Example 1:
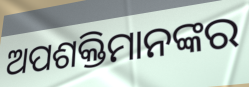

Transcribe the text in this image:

ଅପଶକ୍ତିମାନଙ୍କର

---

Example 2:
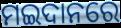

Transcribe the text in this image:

ମଇଦାନରେ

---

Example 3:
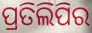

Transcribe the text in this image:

ପ୍ରତିଲିପିର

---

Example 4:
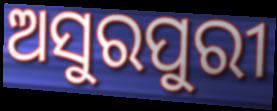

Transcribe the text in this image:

ଅସୁରପୁରୀ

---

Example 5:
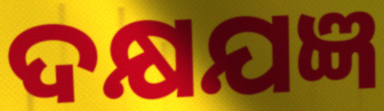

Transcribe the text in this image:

ଦକ୍ଷଯଜ୍ଞ